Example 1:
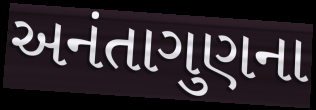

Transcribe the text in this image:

અનંતાગુણના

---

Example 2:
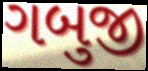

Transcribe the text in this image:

ગબુજી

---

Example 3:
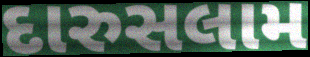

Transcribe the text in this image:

દારુસલામ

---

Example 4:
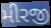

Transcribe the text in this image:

મીરજી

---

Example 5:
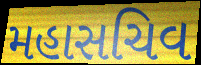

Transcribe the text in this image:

મહાસચિવ